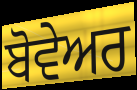
ਬੋਵੇਅਰ